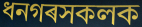
ধনগৰসকলক